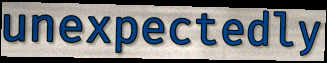
unexpectedly